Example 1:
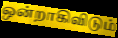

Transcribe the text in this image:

ஒன்றாகிவிடும்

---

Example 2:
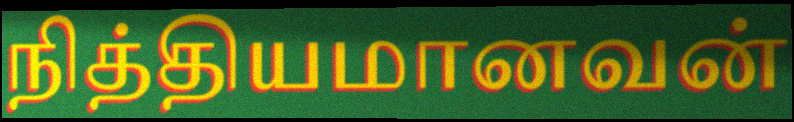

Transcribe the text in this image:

நித்தியமானவன்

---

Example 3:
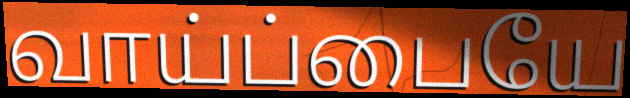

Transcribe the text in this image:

வாய்ப்பையே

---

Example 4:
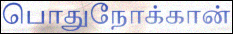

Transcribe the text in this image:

பொதுநோக்கான்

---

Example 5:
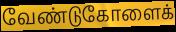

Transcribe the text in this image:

வேண்டுகோளைக்